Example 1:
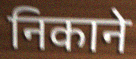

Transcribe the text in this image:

निकाने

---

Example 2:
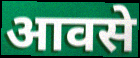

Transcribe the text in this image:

आवसे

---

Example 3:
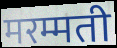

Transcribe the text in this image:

मरम्मती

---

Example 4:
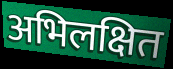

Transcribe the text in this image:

अभिलक्षित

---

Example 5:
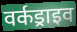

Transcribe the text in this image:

वर्कड्राइव